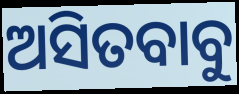
ଅସିତବାବୁ